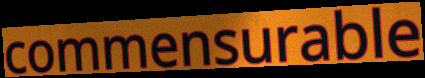
commensurable